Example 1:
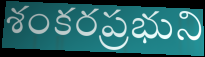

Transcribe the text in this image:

శంకరప్రభుని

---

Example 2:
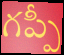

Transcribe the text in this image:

గప్పీ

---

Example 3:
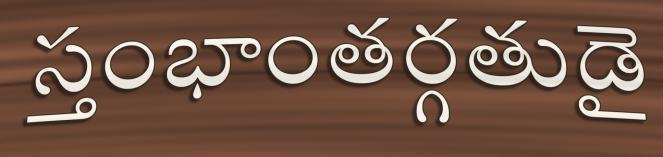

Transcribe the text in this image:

స్తంభాంతర్గతుడై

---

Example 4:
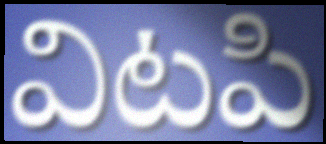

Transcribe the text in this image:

విటపి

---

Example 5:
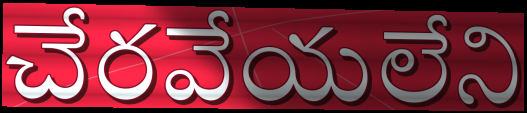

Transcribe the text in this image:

చేరవేయలేని